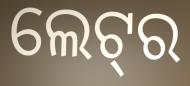
ଲେଟ୍‌ର